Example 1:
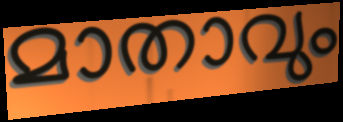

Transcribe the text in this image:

മാതാവും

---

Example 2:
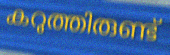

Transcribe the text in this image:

കറുത്തിരുണ്ട്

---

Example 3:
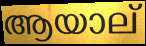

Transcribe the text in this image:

ആയാല്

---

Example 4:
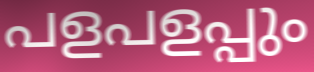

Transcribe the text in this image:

പളപളപ്പും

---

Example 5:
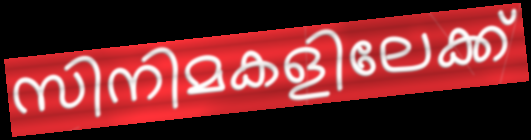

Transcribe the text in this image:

സിനിമകളിലേക്ക്